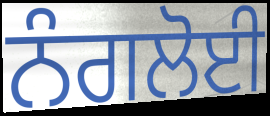
ਨੰਗਲੋਈ